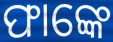
ଫାଙ୍କେ